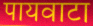
पायवाटा